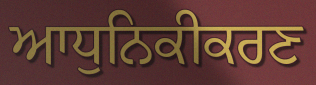
ਆਧੁਨਿਕੀਕਰਣ